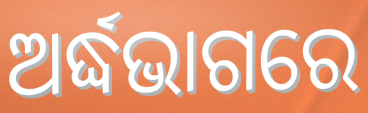
ଅର୍ଦ୍ଧଭାଗରେ